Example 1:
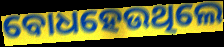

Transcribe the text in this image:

ବୋଧହେଉଥିଲେ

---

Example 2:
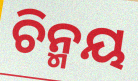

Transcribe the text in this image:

ଚିନ୍ମୟ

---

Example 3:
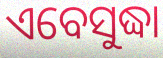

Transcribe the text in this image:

ଏବେସୁଦ୍ଧା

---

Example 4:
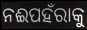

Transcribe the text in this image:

ନଈପହଁରାକୁ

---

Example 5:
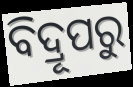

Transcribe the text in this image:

ବିଦ୍ରୂପରୁ